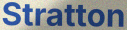
Stratton